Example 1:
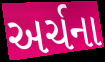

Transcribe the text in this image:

અર્ચના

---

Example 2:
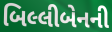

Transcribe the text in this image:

બિલ્લીબેનની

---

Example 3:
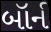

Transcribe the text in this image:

બૉર્ન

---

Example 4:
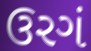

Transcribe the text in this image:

ઉરગં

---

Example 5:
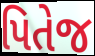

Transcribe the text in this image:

પિતેજ